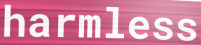
harmless